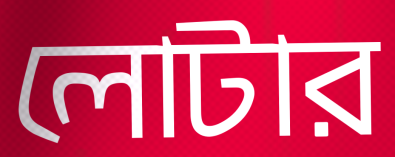
লোটার